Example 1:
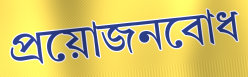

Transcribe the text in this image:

প্ৰয়োজনবোধ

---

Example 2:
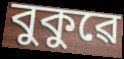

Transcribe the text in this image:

বুকুৱে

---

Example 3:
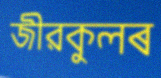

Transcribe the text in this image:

জীৱকুলৰ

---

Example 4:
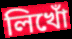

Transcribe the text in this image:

লিখোঁ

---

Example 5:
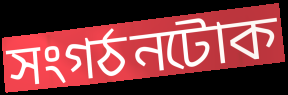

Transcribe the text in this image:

সংগঠনটোক